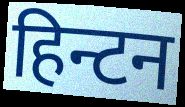
हिन्टन